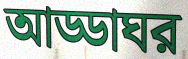
আড্ডাঘর